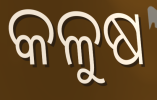
କଳୁଷ